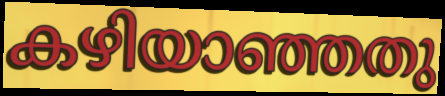
കഴിയാഞ്ഞതു